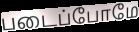
படைப்போமே